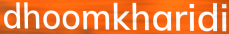
dhoomkharidi